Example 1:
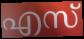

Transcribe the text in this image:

എസ്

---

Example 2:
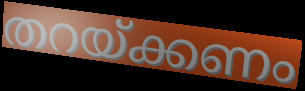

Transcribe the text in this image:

തറയ്ക്കണം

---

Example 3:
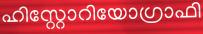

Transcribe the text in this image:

ഹിസ്റ്റോറിയോഗ്രാഫി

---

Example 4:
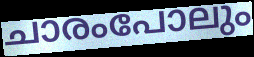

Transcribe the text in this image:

ചാരംപോലും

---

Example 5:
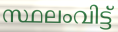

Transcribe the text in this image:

സ്ഥലംവിട്ട്